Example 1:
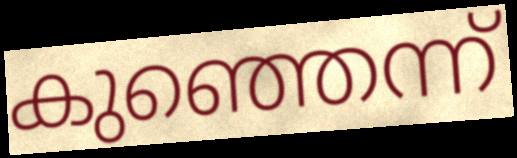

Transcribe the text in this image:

കുഞ്ഞെന്ന്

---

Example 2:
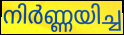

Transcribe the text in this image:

നിർണ്ണയിച്ച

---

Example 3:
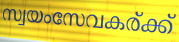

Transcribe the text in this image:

സ്വയംസേവകര്ക്ക്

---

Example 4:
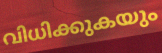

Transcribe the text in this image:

വിധിക്കുകയും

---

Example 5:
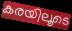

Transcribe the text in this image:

കരയിലൂടെ